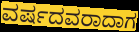
ವರ್ಷದವರಾದಾಗ